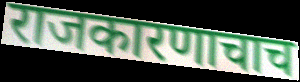
राजकारणाचाच